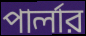
পার্লার